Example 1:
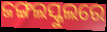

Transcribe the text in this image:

ଜଙ୍ଗଲସ୍କୁଲରେ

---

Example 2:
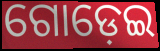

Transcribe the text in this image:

ଗୋଡ଼େଇ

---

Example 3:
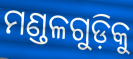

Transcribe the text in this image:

ମଣ୍ଡଳଗୁଡ଼ିକୁ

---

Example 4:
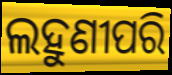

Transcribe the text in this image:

ଲହୁଣୀପରି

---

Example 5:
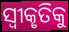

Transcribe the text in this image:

ସ୍ବୀକୃତିକୁ